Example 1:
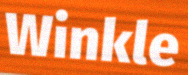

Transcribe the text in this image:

Winkle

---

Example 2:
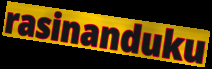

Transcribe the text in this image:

rasinanduku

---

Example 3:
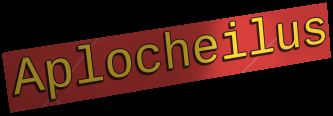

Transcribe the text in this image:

Aplocheilus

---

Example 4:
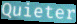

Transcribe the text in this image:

Quieter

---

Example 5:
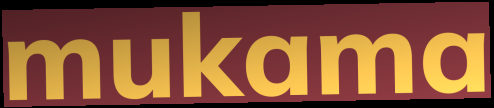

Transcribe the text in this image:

mukama